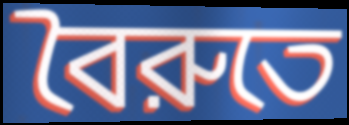
বৈরুতে